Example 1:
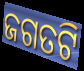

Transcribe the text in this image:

ଜଗତଟି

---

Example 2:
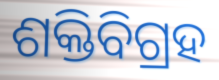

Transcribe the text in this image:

ଶକ୍ତିବିଗ୍ରହ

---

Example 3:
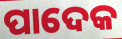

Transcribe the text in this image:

ପାଦେକ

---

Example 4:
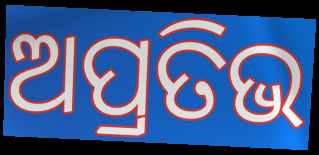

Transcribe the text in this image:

ଅପ୍ରତିଭ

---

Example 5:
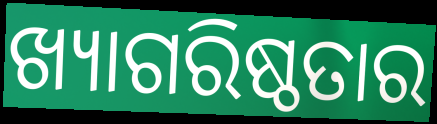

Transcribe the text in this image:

ଖ୍ୟାଗରିଷ୍ଠତାର